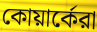
কোয়ার্কেরা